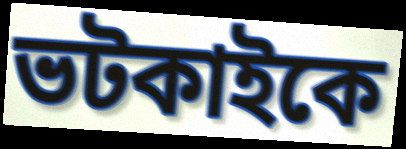
ভটকাইকে